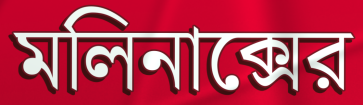
মলিনাক্সের